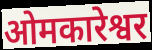
ओमकारेश्वर